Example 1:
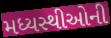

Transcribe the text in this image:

મધ્યસ્થીઓની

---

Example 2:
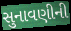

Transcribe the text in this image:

સુનાવણીની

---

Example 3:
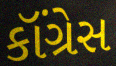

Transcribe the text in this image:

કૉંગ્રેસ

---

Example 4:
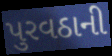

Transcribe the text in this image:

પુરવઠાની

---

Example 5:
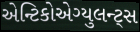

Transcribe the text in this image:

એન્ટિકોએગ્યુલન્ટ્સ